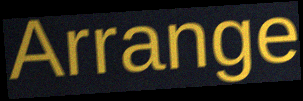
Arrange